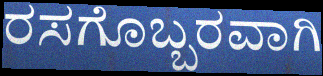
ರಸಗೊಬ್ಬರವಾಗಿ